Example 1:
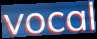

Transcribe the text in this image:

vocal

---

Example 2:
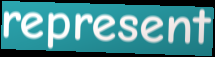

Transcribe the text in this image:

represent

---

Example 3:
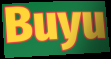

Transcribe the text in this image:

Buyu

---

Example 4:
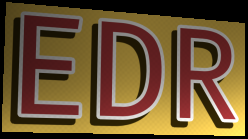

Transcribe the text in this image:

EDR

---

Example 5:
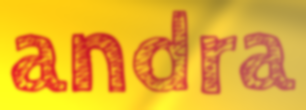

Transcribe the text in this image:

andra